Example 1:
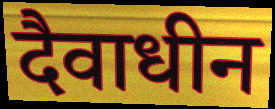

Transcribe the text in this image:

दैवाधीन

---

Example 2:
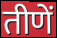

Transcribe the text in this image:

तीणें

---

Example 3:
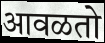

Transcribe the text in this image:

आवळतो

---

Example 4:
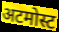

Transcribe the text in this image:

अटमोस्ट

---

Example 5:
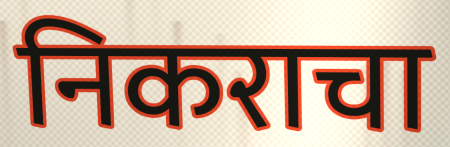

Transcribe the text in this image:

निकराचा